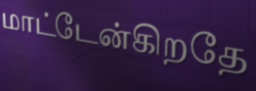
மாட்டேன்கிறதே